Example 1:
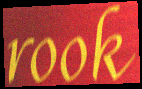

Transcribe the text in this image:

rook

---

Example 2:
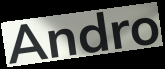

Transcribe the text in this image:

Andro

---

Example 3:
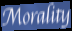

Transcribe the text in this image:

Morality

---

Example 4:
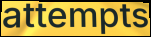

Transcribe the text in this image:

attempts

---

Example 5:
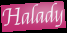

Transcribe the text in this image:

Halady